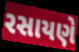
રસાયણે